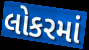
લોકરમાં